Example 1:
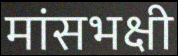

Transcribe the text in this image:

मांसभक्षी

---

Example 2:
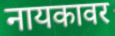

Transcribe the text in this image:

नायकावर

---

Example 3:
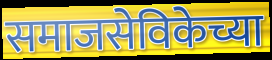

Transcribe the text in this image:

समाजसेविकेच्या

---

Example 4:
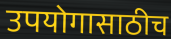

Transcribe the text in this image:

उपयोगासाठीच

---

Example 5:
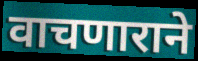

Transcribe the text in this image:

वाचणाराने